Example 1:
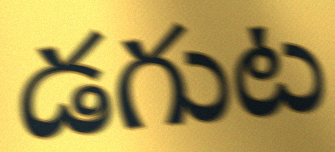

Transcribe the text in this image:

డగుట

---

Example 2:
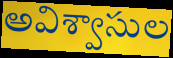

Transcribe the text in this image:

అవిశ్వాసుల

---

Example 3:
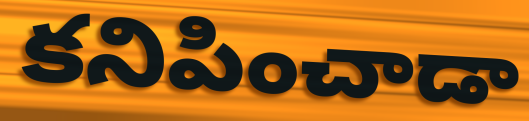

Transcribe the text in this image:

కనిపించాడా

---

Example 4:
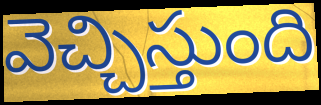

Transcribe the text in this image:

వెచ్చిస్తుంది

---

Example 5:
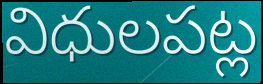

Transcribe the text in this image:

విధులపట్ల